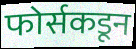
फोर्सकडून